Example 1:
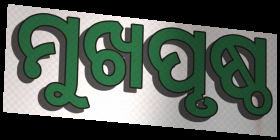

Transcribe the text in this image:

ମୁଖପୃଷ୍ଠ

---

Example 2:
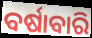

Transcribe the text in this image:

ବର୍ଷାବାରି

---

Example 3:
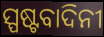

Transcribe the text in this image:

ସ୍ପଷ୍ଟବାଦିନୀ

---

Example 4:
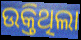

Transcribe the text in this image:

ଉକ୍ତିଥିଲା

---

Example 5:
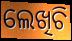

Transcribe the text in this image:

ଲେଖିଚି